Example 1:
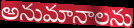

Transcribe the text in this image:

అనుమానాలను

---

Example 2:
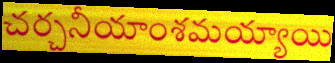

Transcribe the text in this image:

చర్చనీయాంశమయ్యాయి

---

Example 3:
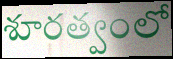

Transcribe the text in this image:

శూరత్వంలో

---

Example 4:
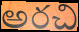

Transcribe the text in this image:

అరచి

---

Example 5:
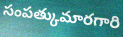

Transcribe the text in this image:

సంపత్కుమారగారి